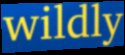
wildly